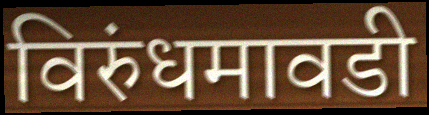
विरुंधमावडी